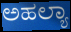
ಅಹಲ್ಯಾ